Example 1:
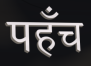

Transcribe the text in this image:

पहँच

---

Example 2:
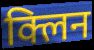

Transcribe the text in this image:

क्लिन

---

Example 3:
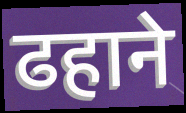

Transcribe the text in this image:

ढहाने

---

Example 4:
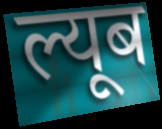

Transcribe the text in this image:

ल्यूब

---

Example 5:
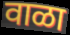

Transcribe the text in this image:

वाळा